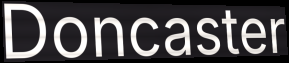
Doncaster